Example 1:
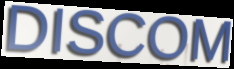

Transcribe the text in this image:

DISCOM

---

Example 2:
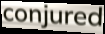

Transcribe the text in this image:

conjured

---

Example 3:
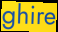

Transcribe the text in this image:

ghire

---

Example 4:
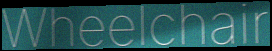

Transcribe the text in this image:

Wheelchair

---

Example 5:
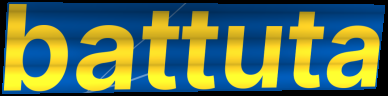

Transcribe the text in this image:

battuta